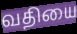
வதியை